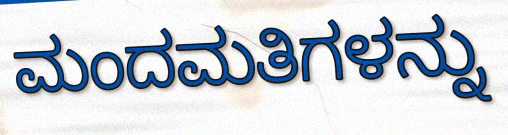
ಮಂದಮತಿಗಳನ್ನು